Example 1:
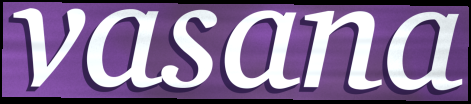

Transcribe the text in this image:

vasana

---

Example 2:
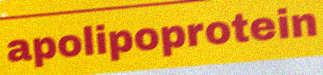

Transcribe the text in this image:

apolipoprotein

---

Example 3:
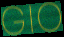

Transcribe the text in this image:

GIO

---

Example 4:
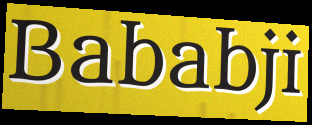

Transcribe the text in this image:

Bababji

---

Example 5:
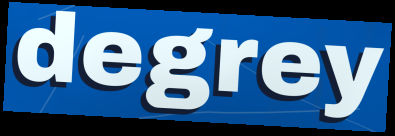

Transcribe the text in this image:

degrey